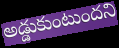
అడ్డుకుంటుందని